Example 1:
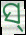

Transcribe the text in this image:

ସ୍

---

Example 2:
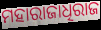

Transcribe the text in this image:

ମହାରାଜାଧିରାଜ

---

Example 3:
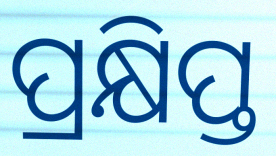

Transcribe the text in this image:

ପ୍ରକ୍ଷିପ୍ତ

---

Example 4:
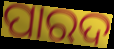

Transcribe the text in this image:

ପାରଦ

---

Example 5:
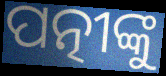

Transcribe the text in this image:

ପତ୍ନୀଙ୍କୁ